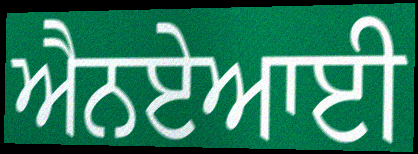
ਐਨਏਆਈ